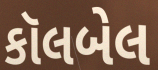
કૉલબેલ